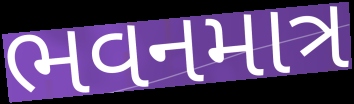
ભવનમાત્ર